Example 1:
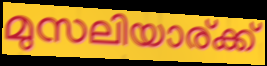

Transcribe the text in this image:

മുസലിയാര്ക്ക്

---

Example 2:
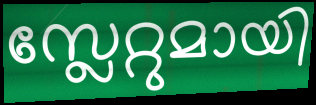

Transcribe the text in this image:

സ്ലേറ്റുമായി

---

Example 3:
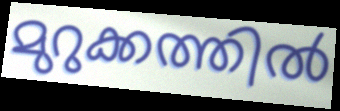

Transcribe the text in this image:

മുറുക്കത്തിൽ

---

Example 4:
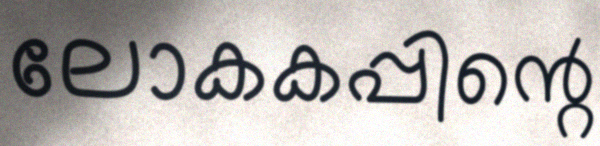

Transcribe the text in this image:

ലോകകപ്പിന്റെ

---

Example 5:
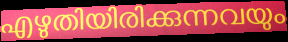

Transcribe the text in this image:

എഴുതിയിരിക്കുന്നവയും